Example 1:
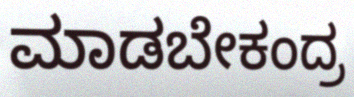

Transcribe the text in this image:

ಮಾಡಬೇಕಂದ್ರ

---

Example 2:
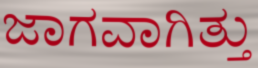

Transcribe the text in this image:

ಜಾಗವಾಗಿತ್ತು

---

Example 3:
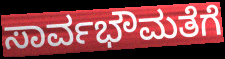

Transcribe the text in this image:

ಸಾರ್ವಭೌಮತೆಗೆ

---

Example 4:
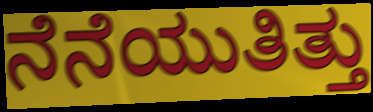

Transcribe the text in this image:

ನೆನೆಯುತಿತ್ತು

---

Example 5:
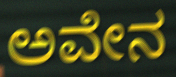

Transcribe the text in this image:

ಅವೇನ